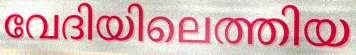
വേദിയിലെത്തിയ